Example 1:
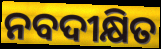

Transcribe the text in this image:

ନବଦୀକ୍ଷିତ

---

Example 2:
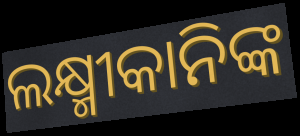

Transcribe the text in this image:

ଲକ୍ଷ୍ମୀକାନିଙ୍କ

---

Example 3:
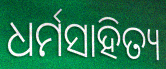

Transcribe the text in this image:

ଧର୍ମସାହିତ୍ୟ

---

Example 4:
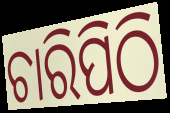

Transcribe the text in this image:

ଚାରିପିଠି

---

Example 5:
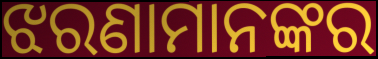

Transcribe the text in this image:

ଝରଣାମାନଙ୍କର